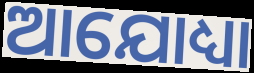
ଆଯୋଧ୍ୟା